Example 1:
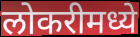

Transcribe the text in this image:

लोकरीमध्ये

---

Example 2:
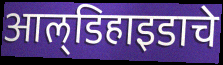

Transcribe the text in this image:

आल्डिहाइडाचे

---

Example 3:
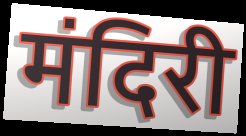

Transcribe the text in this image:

मंदिरी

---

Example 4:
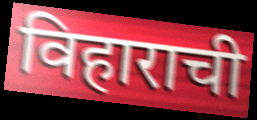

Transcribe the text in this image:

विहाराची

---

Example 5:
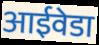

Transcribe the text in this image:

आईवेडा